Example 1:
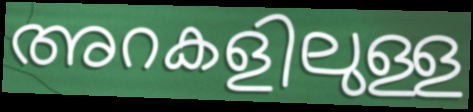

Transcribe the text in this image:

അറകളിലുള്ള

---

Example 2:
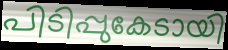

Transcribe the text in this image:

പിടിപ്പുകേടായി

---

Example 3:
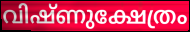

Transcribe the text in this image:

വിഷ്ണുക്ഷേത്രം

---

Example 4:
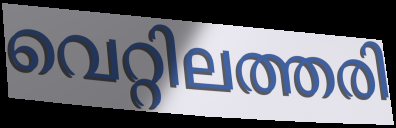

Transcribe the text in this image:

വെറ്റിലത്തരി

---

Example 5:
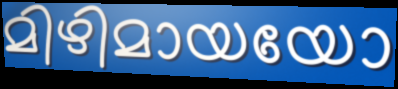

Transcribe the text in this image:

മിഴിമായയോ